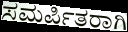
ಸಮರ್ಪಿತರಾಗಿ